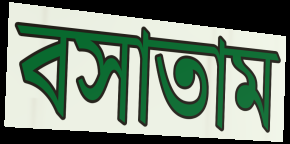
বসাতাম